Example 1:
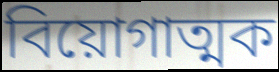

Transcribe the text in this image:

বিয়োগাত্মক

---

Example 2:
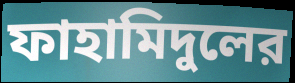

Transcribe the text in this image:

ফাহামিদুলের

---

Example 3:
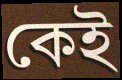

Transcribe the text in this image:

কেই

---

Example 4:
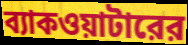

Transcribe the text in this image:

ব্যাকওয়াটারের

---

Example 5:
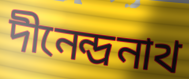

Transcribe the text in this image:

দীনেন্দ্রনাথ